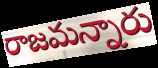
రాజమన్నారు